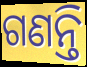
ଗଣନ୍ତି